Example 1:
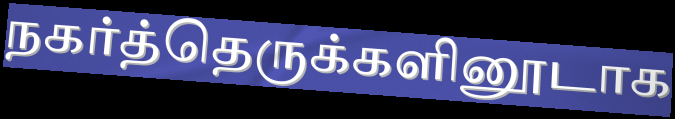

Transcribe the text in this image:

நகர்த்தெருக்களினூடாக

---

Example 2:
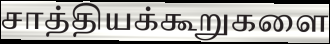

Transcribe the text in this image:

சாத்தியக்கூறுகளை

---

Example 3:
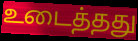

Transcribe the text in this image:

உடைத்தது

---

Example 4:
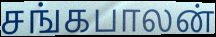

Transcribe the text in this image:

சங்கபாலன்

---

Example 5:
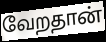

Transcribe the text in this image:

வேறதான்